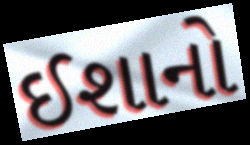
ઈશાનો